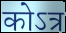
कोऽत्र